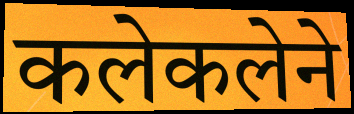
कलेकलेने